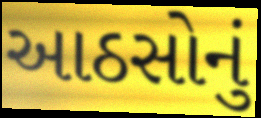
આઠસોનું